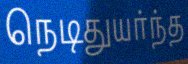
நெடிதுயர்ந்த